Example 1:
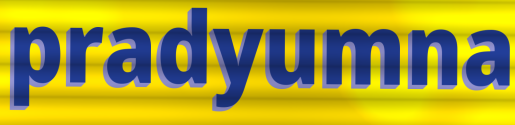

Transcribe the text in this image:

pradyumna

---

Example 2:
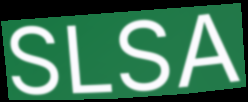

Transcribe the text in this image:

SLSA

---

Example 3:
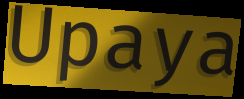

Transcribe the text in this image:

Upaya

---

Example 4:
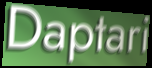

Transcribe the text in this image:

Daptari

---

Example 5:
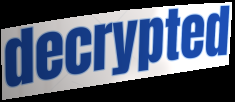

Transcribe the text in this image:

decrypted